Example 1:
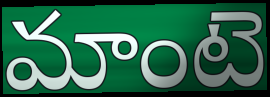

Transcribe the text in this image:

మాంటె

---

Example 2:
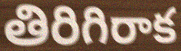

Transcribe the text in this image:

తిరిగిరాక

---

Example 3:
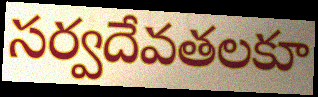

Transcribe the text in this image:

సర్వదేవతలకూ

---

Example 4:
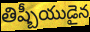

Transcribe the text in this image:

తిష్బీయుడైన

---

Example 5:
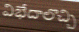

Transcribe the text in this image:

విభేదాలొచ్చి